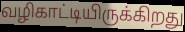
வழிகாட்டியிருக்கிறது